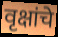
वृक्षांचे